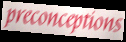
preconceptions